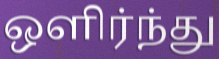
ஒளிர்ந்து